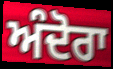
ਅੰਦੋਰਾ